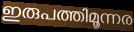
ഇരുപത്തിമൂന്നര